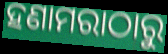
ହଣାମରାଠାରୁ